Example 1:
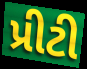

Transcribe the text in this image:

પ્રીટી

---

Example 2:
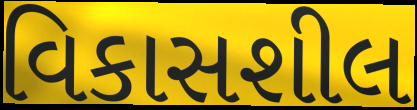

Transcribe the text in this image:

વિકાસશીલ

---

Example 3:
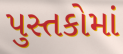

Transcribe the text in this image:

પુસ્તકોમાં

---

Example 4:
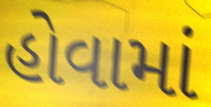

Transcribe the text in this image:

હોવામાં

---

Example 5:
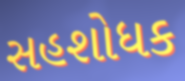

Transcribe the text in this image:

સહશોધક